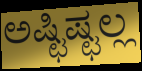
ಅಷ್ಟಿಷ್ಟಲ್ಲ